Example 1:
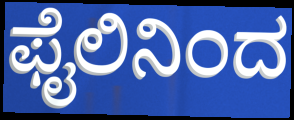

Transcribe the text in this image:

ಫೈಲಿನಿಂದ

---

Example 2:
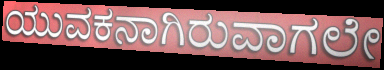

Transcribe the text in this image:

ಯುವಕನಾಗಿರುವಾಗಲೇ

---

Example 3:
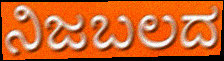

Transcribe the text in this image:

ನಿಜಬಲದ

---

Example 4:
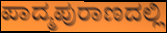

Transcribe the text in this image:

ಪಾದ್ಮಪುರಾಣದಲ್ಲಿ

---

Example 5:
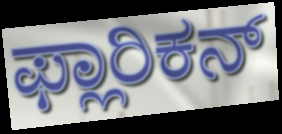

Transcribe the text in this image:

ಫ್ಲಾರಿಕನ್